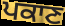
ਪਕਾਣ